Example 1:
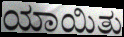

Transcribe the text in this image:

ಯಾಯಿತು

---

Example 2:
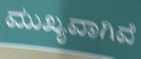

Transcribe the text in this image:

ಮುಖ್ಯವಾಗಿವೆ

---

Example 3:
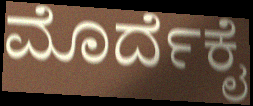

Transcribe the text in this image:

ಮೊರ್ದೆಕೈ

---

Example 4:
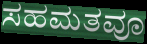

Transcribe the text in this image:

ಸಹಮತವೂ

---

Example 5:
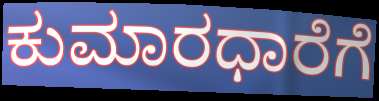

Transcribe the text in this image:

ಕುಮಾರಧಾರೆಗೆ